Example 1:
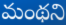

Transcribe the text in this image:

మంథని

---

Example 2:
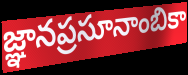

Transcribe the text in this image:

జ్ఞానప్రసూనాంబికా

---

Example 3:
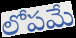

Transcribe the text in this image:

లోపమే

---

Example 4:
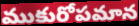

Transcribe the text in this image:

ముకురోపమాన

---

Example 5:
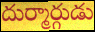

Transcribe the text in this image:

దుర్మార్గుడు